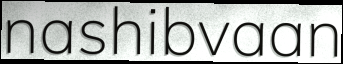
nashibvaan